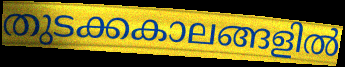
തുടക്കകാലങ്ങളിൽ